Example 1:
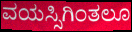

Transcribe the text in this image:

ವಯಸ್ಸಿಗಿಂತಲೂ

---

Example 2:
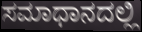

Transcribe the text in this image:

ಸಮಾಧಾನದಲ್ಲಿ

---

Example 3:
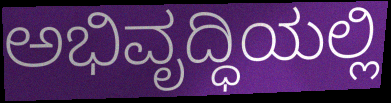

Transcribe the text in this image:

ಅಭಿವೃದ್ಧಿಯಲ್ಲಿ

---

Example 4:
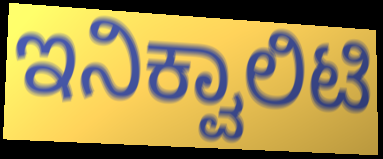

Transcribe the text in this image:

ಇನಿಕ್ವಾಲಿಟಿ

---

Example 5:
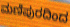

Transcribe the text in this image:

ಮಣಿಪುರದಿಂದ